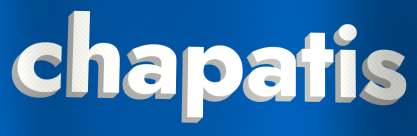
chapatis